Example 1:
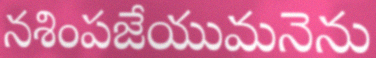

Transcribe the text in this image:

నశింపజేయుమనెను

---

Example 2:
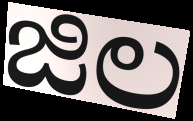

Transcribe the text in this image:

జిల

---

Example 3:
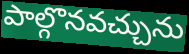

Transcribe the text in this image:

పాల్గొనవచ్చును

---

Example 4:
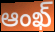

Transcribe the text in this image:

ఆంఖ్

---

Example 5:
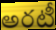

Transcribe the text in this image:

అరటీ